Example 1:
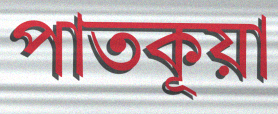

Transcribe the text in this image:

পাতকূয়া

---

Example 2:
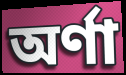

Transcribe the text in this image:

অর্ণা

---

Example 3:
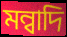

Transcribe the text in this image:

মন্বাদি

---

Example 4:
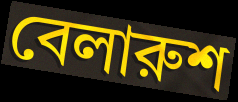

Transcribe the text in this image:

বেলারুশ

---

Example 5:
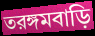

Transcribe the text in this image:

তরঙ্গমবাড়ি